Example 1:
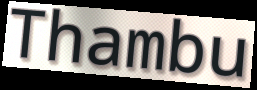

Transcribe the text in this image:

Thambu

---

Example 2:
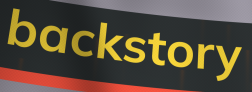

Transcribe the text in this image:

backstory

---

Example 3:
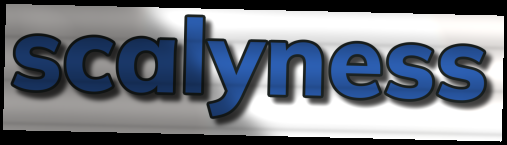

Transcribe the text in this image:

scalyness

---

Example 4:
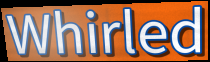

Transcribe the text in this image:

Whirled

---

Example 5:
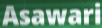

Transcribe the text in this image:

Asawari